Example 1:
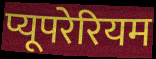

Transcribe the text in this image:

प्यूपरेरियम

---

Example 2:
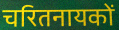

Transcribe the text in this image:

चरितनायकों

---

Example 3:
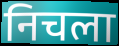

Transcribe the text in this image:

निचला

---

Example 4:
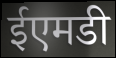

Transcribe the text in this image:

ईएमडी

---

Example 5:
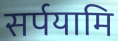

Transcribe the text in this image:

सर्पयामि